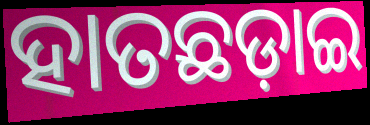
ହାତଛଡ଼ାଇ